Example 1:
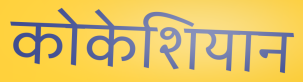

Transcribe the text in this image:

कोकेशियान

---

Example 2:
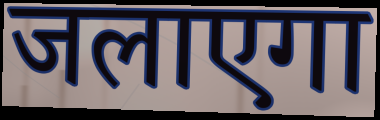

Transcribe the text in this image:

जलाएगा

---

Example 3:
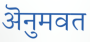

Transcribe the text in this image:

ऄनुमवत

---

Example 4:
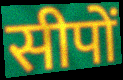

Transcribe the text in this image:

सीपों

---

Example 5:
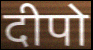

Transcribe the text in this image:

दीपो